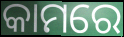
କାମରେ